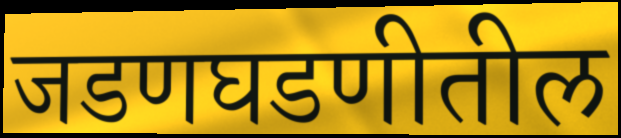
जडणघडणीतील